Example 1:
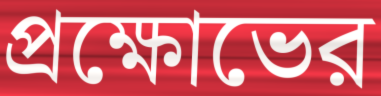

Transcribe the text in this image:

প্রক্ষোভের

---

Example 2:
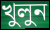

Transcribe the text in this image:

খুলুন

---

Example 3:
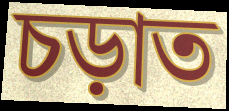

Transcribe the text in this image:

চড়াত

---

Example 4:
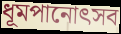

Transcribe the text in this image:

ধূমপানোৎসব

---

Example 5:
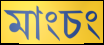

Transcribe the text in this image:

মাংচং